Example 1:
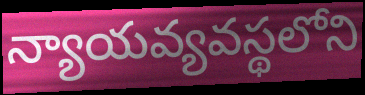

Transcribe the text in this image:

న్యాయవ్యవస్థలోని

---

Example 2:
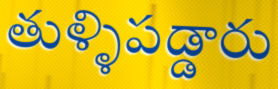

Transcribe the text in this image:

తుళ్ళిపడ్డారు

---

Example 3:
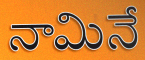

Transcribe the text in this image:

నామినే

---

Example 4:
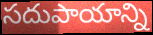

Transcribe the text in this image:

సదుపాయాన్ని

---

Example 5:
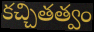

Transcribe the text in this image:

కచ్చితత్వం